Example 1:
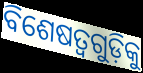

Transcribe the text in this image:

ବିଶେଷତ୍ୱଗୁଡ଼ିକୁ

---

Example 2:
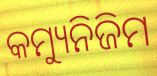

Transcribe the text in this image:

କମ୍ୟୁନିଜିମ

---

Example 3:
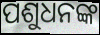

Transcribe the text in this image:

ପଶୁଧନଙ୍କ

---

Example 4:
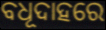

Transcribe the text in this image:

ବଧୂଦାହରେ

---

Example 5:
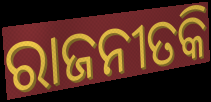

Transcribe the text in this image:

ରାଜନୀତକି